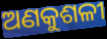
ଅଣକୁଶଳୀ